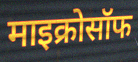
माइक्रोसॉफ